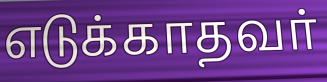
எடுக்காதவர்